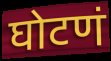
घोटणं